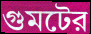
গুমটের